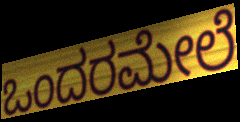
ಒಂದರಮೇಲೆ